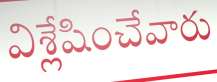
విశ్లేషించేవారు